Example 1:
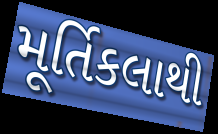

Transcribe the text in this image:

મૂર્તિકલાથી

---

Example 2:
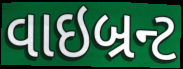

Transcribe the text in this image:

વાઇબ્રન્ટ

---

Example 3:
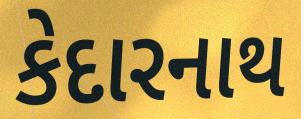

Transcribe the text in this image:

કેદારનાથ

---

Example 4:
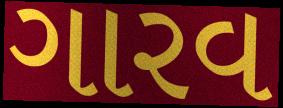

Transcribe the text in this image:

ગારવ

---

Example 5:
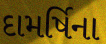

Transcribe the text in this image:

દામર્ષિના